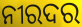
ନୀରଦର